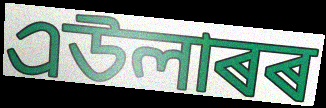
এউলাৰৰ